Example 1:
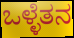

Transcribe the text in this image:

ಒಳ್ಳೆತನ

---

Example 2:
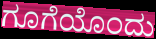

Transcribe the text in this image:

ಗೂಗೆಯೊಂದು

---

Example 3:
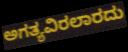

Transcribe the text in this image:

ಅಗತ್ಯವಿರಲಾರದು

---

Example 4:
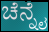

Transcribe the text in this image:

ಚೆನ್ನೈ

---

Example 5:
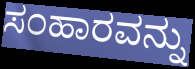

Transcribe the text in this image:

ಸಂಹಾರವನ್ನು